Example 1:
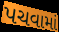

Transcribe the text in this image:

પચવામાં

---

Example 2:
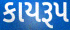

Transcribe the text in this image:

કાયરૂપ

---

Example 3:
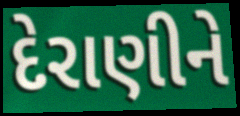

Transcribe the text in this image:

દેરાણીને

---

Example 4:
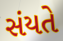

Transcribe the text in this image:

સંયતે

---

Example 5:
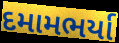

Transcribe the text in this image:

દમામભર્યા